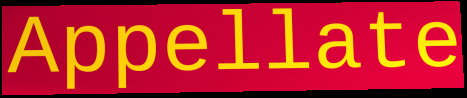
Appellate